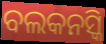
ବଲକନସ୍କି